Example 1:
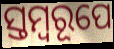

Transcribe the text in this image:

ସ୍ତମ୍ବରୂପେ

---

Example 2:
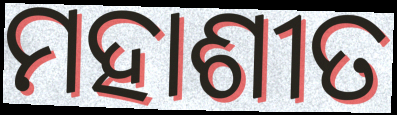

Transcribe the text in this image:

ମହାଶୀତ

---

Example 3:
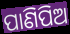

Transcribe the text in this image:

ପାଣିପିଅ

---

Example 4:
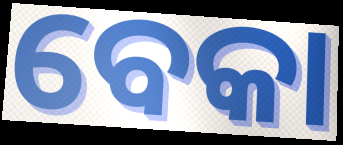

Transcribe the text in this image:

ବେକା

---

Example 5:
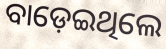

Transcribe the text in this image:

ବାଡ଼େଇଥିଲେ